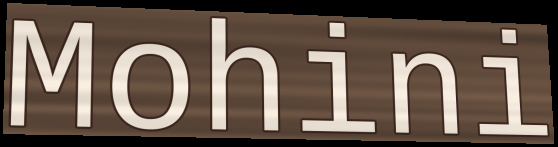
Mohini